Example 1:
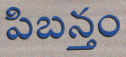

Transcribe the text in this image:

పిబన్తం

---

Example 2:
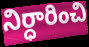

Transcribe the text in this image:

నిర్ధారించి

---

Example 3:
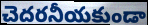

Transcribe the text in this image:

చెదరనీయకుండా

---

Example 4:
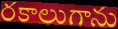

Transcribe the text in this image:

రకాలుగాను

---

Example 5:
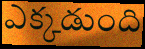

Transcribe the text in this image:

ఎక్కడుంది